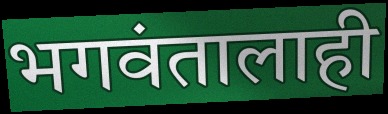
भगवंतालाही